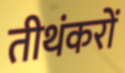
तीथंकरों